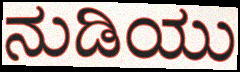
ನುಡಿಯು